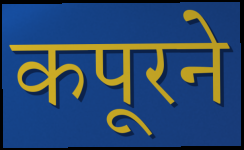
कपूरने